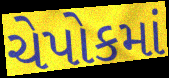
ચેપોકમાં